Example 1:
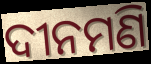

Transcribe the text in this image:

ଦୀନମଣି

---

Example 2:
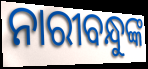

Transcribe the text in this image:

ନାରୀବନ୍ଧୁଙ୍କ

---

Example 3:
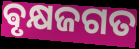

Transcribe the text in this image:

ଵୃକ୍ଷଜଗତ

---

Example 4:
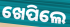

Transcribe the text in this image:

ଖେପିଲେ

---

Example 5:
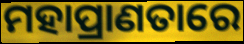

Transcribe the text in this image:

ମହାପ୍ରାଣତାରେ